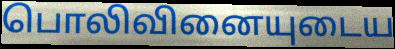
பொலிவினையுடைய